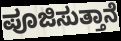
ಪೂಜಿಸುತ್ತಾನೆ